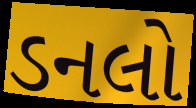
ડનલો